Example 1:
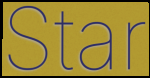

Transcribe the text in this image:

Star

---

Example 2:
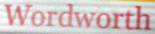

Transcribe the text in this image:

Wordworth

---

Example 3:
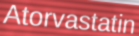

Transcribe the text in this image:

Atorvastatin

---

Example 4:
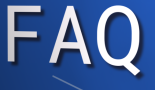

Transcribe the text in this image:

FAQ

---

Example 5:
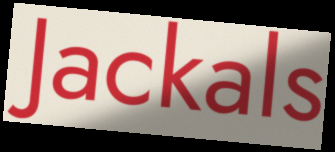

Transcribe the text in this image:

Jackals